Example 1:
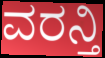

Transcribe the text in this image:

ವರನ್ತಿ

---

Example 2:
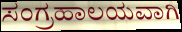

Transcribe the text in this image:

ಸಂಗ್ರಹಾಲಯವಾಗಿ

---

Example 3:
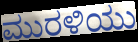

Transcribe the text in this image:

ಮುರಳಿಯು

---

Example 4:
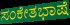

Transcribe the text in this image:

ಸಂಕೇತಭಾಷೆ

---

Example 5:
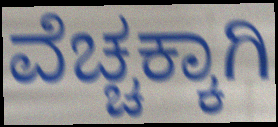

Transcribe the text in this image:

ವೆಚ್ಚಕ್ಕಾಗಿ